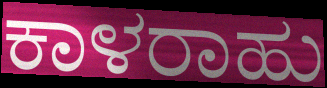
ಕಾಳರಾಹು